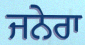
ਜਨੇਰਾ